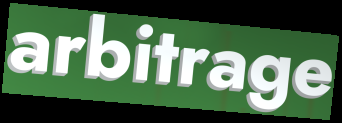
arbitrage